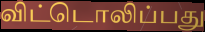
விட்டொலிப்பது